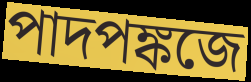
পাদপঙ্কজে